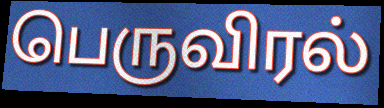
பெருவிரல்